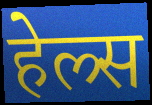
हेल्स